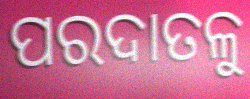
ପରଦାତଳୁ